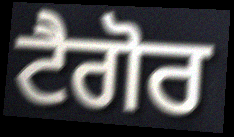
ਟੈਗੋਰ